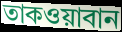
তাকওয়াবান